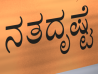
ನತದೃಷ್ಟೆ